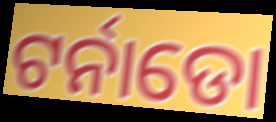
ଟର୍ନାଡୋ